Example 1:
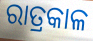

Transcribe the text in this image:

ରାତ୍ରକାଳ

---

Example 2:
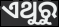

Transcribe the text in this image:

ଏଥୁରୁ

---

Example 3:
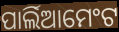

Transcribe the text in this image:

ପାର୍ଲିଆମେଂଟ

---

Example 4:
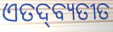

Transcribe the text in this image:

ଏତଦ୍‍ବ୍ୟତୀତ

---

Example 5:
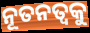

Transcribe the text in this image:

ନୂତନତ୍ବକୁ